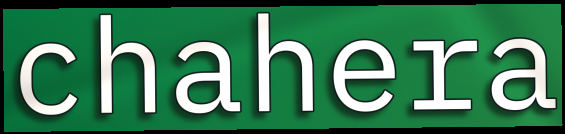
chahera